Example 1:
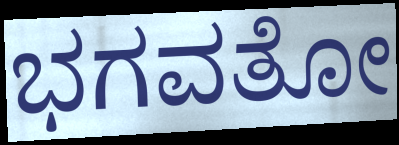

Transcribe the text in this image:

ಭಗವತೋ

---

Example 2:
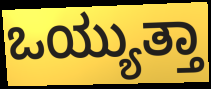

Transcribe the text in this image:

ಒಯ್ಯುತ್ತಾ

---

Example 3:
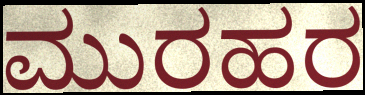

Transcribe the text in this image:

ಮುರಹರ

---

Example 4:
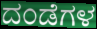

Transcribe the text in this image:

ದಂಡೆಗಳ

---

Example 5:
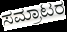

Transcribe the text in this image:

ಸಮ್ರಾಟರ